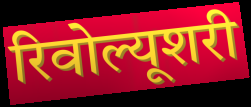
रिवोल्यूशरी